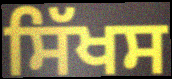
ਸਿੱਖਸ